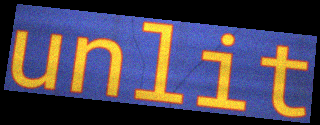
unlit